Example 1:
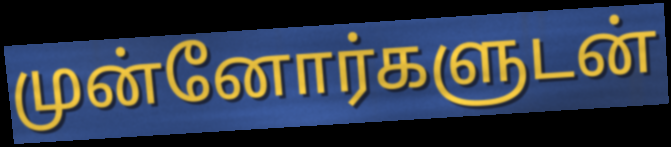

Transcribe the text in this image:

முன்னோர்களுடன்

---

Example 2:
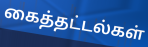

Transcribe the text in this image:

கைத்தட்டல்கள்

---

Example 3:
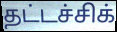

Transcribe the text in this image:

தட்டச்சிக்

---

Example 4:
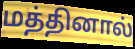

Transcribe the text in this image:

மத்தினால்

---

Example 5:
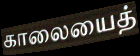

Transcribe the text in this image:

காலையைத்